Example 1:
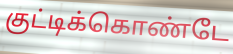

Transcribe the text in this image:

குட்டிக்கொண்டே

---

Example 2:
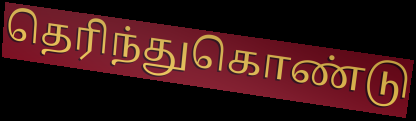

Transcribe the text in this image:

தெரிந்துகொண்டு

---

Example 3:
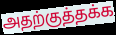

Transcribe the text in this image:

அதற்குத்தக்க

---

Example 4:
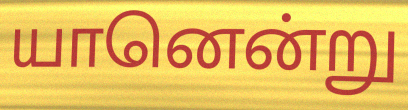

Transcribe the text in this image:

யானென்று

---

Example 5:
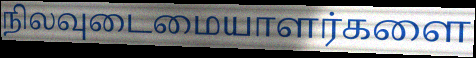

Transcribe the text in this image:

நிலவுடைமையாளர்களை